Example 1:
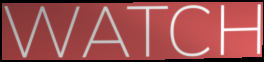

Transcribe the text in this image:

WATCH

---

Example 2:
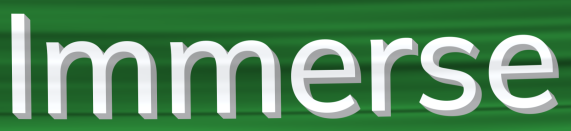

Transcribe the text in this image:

Immerse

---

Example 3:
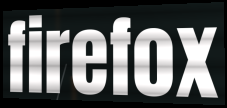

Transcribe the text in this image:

firefox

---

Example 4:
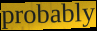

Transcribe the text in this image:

probably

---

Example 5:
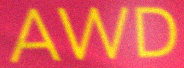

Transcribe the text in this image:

AWD